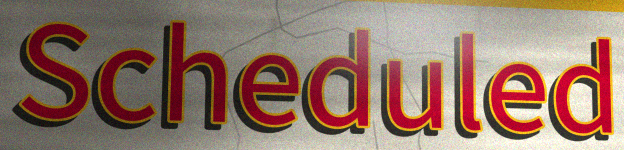
Scheduled